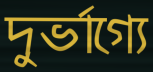
দুর্ভাগ্যে